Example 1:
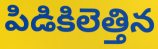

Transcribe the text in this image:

పిడికిలెత్తిన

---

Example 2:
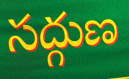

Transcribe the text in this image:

సద్గుణ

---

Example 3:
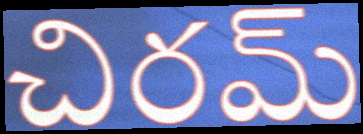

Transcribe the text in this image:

చిరమ్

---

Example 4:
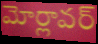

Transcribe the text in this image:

మోర్లావర్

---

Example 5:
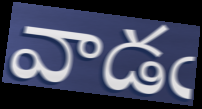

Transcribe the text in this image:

వాడఁ